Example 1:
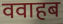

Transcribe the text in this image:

ववाहब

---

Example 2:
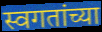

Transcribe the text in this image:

स्वगतांच्या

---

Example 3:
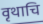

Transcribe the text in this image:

वृथाचि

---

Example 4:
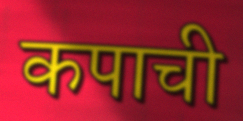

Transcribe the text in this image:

कपाची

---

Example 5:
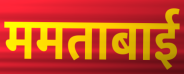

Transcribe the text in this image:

ममताबाई